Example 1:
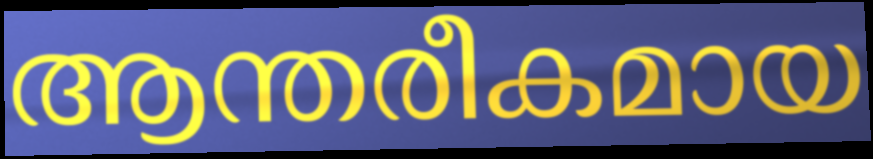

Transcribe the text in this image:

ആന്തരീകമായ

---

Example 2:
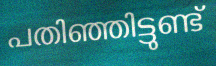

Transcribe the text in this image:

പതിഞ്ഞിട്ടുണ്ട്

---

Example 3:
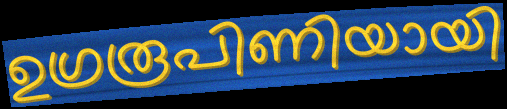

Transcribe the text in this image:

ഉഗ്രരൂപിണിയായി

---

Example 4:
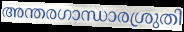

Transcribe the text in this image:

അന്തരഗാന്ധാരശ്രുതി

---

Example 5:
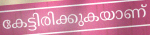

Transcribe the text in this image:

കേട്ടിരിക്കുകയാണ്